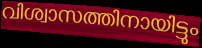
വിശ്വാസത്തിനായിട്ടും